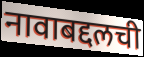
नावाबद्दलची